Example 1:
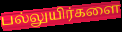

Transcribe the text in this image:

பல்லுயிர்களை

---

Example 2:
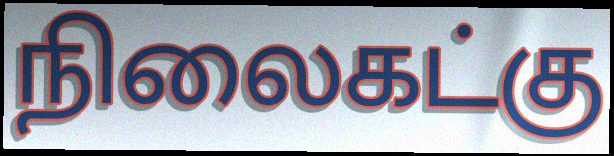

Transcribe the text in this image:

நிலைகட்கு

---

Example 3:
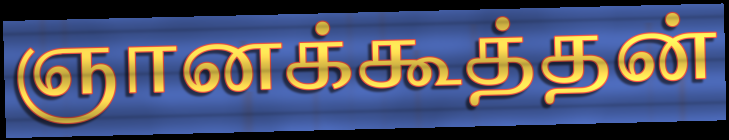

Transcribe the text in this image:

ஞானக்கூத்தன்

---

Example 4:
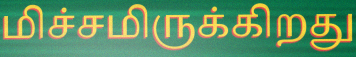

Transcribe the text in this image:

மிச்சமிருக்கிறது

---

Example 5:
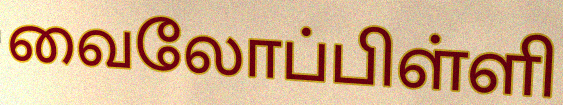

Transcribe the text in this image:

வைலோப்பிள்ளி